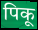
पिकू